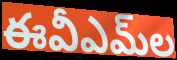
ఈవీఎమ్‌ల